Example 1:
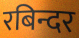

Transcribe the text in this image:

रबिन्दर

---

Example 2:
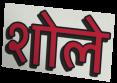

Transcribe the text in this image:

शोले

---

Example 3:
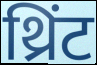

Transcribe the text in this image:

थ्रिंट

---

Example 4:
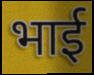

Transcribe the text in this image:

भार्ई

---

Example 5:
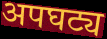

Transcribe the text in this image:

अपघट्य